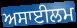
ਅਸਾਈਲਮ